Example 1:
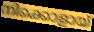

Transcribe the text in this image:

നിക്കൊളായ്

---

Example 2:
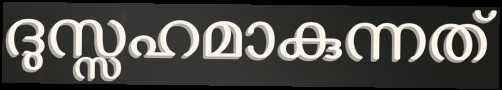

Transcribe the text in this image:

ദുസ്സഹമാകുന്നത്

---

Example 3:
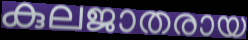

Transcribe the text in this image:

കുലജാതരായ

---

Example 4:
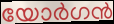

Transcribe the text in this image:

യോർഗൻ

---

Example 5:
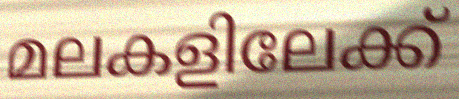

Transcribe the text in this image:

മലകളിലേക്ക്